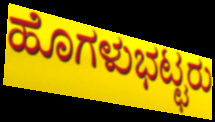
ಹೊಗಳುಭಟ್ಟರು